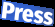
Press